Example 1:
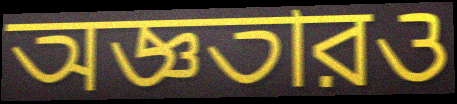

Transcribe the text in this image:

অজ্ঞতারও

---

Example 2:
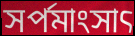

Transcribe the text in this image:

সর্পমাংসাৎ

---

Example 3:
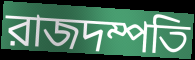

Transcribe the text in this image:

রাজদম্পতি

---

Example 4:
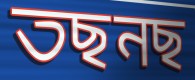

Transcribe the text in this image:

তছনছ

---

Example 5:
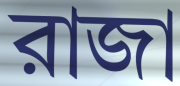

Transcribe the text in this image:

রাজা